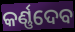
କର୍ଣ୍ଣଦେବ